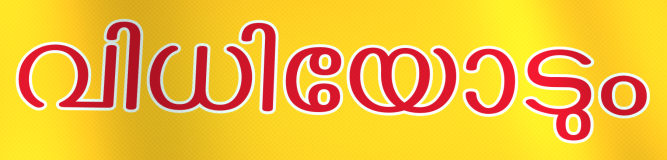
വിധിയോടും